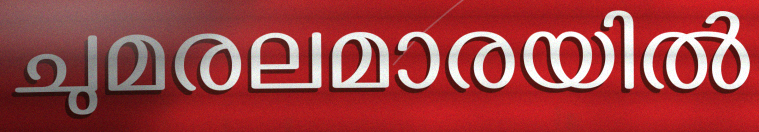
ചുമരലമാരയിൽ